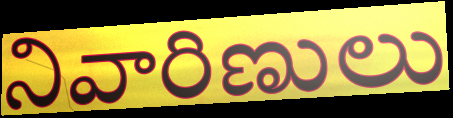
నివారిణులు